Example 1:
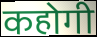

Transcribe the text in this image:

कहोगी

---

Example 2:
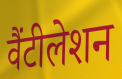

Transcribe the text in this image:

वैंटीलेशन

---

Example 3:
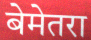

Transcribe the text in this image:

बेमेतरा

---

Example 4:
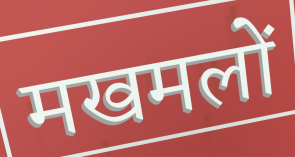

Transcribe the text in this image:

मखमलों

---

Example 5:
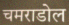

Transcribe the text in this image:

चमराडोल